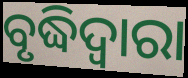
ବୃଦ୍ଧିଦ୍ୱାରା